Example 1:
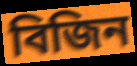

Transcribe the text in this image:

বিজিন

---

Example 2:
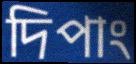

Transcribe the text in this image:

দিপাং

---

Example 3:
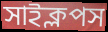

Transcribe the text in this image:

সাইক্লপস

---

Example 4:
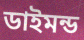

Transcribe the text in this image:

ডাইমন্ড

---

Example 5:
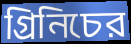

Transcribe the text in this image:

গ্রিনিচের